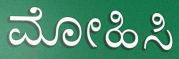
ಮೋಹಿಸಿ